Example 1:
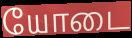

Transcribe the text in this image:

யோடை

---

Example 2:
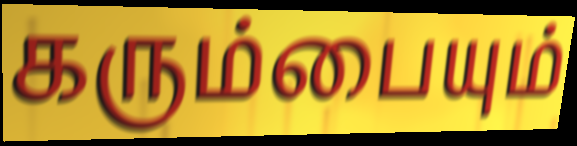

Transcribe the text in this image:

கரும்பையும்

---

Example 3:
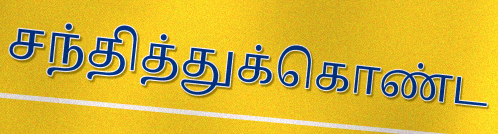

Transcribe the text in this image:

சந்தித்துக்கொண்ட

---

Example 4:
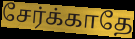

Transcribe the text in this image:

சேர்க்காதே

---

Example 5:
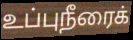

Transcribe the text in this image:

உப்புநீரைக்